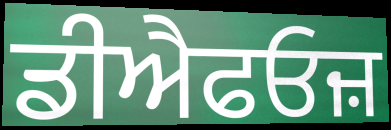
ਡੀਐਫਓਜ਼